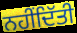
ਨਹੀਂਦਿੱਤੀ